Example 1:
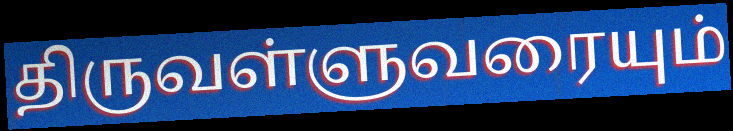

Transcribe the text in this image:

திருவள்ளுவரையும்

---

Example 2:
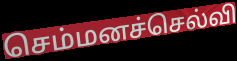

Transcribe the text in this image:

செம்மனச்செல்வி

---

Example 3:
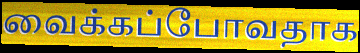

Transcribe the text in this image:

வைக்கப்போவதாக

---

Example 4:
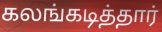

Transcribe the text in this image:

கலங்கடித்தார்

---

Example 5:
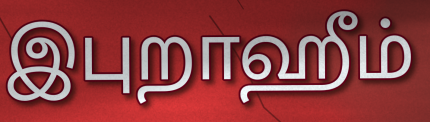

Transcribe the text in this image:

இபுறாஹீம்